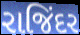
રાજિંદર